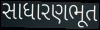
સાધારણભૂત